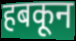
हबकून